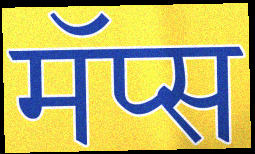
मॅप्स